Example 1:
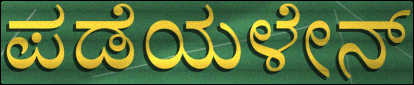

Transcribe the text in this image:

ಪಡೆಯಳೇನ್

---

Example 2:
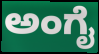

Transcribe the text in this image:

ಅಂಗೈ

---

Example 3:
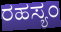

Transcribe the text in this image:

ರಹಸ್ಯಂ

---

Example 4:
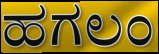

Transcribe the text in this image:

ಹಗಲಂ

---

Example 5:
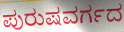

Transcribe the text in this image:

ಪುರುಷವರ್ಗದ